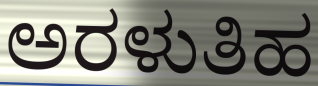
ಅರಳುತಿಹ